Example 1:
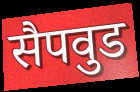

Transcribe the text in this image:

सैपवुड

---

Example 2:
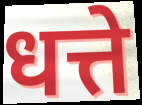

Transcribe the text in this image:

धत्ते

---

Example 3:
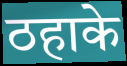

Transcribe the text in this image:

ठहाके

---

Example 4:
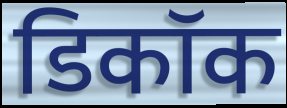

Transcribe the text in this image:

डिकॉक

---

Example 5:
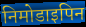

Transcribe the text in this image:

निमोडाइपिन